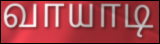
வாயாடி